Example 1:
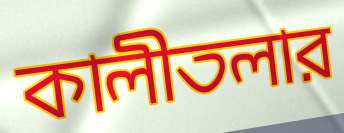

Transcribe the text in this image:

কালীতলার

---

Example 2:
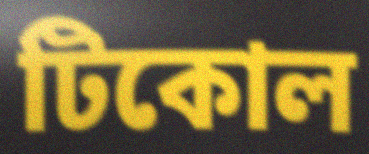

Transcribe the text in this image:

টিকোল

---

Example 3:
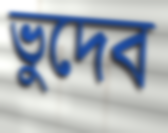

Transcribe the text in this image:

ভুদেব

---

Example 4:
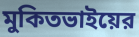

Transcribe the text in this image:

মুকিতভাইয়ের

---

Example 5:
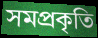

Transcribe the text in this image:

সমপ্রকৃতি